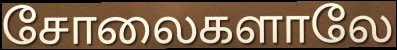
சோலைகளாலே